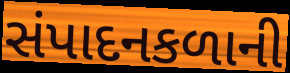
સંપાદનકળાની